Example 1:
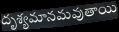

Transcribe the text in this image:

దృశ్యమానమవుతాయి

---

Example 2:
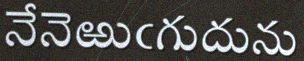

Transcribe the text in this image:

నేనెఱుఁగుదును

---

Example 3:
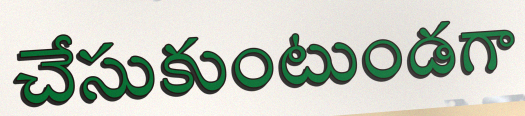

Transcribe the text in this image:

చేసుకుంటుండగా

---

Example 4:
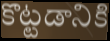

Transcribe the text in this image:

కొట్టడానికి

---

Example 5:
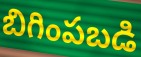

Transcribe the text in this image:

బిగింపబడి